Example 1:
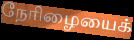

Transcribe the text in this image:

நேரிழையைக்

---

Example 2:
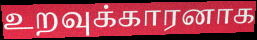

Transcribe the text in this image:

உறவுக்காரனாக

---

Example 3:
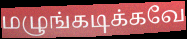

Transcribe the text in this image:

மழுங்கடிக்கவே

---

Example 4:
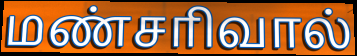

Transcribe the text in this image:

மண்சரிவால்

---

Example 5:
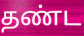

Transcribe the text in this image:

தண்ட